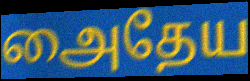
அைதேய